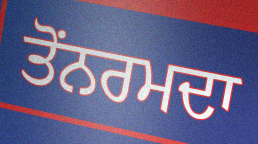
ਤੋਂਨਰਮਦਾ